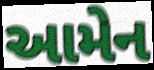
આમેન